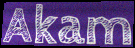
Akam